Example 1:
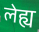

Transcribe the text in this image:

लेह्य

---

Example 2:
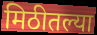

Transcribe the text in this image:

मिठीतल्या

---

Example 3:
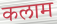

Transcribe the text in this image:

कलाम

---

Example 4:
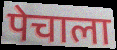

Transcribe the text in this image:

पेचाला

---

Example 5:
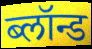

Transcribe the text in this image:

ब्लॉन्ड